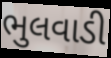
ભુલવાડી